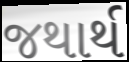
જથાર્થ